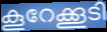
കൂറേക്കൂടി